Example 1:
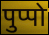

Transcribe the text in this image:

पुप्पो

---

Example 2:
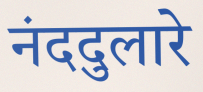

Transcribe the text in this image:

नंददुलारे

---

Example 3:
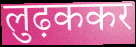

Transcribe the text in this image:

लुढ़ककर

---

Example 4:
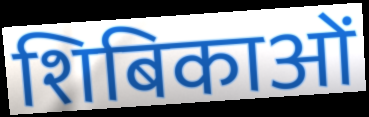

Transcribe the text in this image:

शिबिकाओं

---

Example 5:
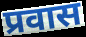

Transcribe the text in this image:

प्रवास